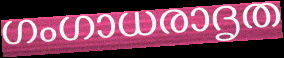
ഗംഗാധരാദൃത